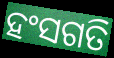
ହଂସଗତି